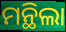
ମନ୍ଥିଲା